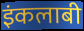
इंकलाबी